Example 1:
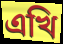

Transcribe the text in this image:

এখি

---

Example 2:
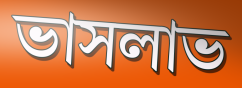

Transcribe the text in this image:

ভাসলাভ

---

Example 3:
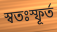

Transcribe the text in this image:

স্বতঃস্ফূর্ত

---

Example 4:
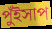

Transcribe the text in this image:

পুঁইসাপ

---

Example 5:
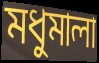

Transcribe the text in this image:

মধুমালা